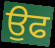
ਉਫ